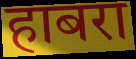
हाबरा